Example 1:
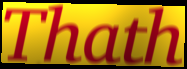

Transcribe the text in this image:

Thath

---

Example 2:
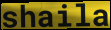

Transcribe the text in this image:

shaila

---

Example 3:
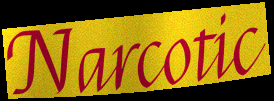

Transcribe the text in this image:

Narcotic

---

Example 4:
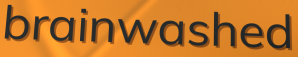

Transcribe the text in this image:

brainwashed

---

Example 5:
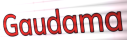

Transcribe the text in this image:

Gaudama